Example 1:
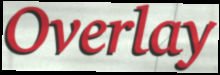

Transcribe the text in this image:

Overlay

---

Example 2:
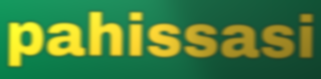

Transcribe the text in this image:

pahissasi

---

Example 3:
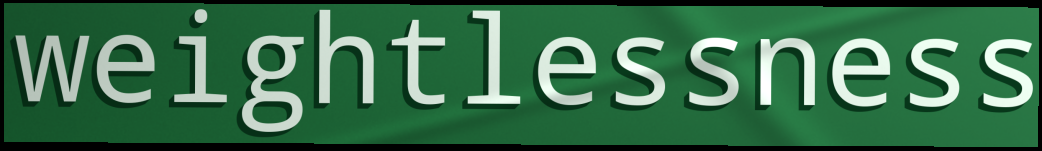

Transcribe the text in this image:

weightlessness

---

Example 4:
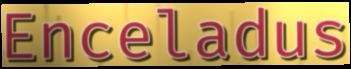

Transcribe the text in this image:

Enceladus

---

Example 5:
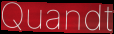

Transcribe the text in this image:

Quandt